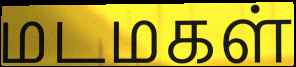
மடமகள்